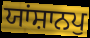
ਯਾਂਸ਼ਾਨਪੁ